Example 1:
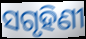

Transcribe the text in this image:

ସଗୃହିଣୀ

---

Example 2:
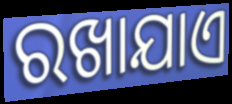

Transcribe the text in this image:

ରଖାଯାଏ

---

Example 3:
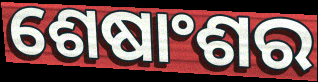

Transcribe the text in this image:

ଶେଷାଂଶର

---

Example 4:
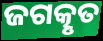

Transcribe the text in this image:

ଜଗତ୍କୃତ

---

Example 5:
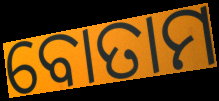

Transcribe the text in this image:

ବୋତାମ